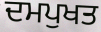
ਦਮਪੁਖਤ